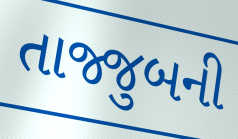
તાજ્જુબની